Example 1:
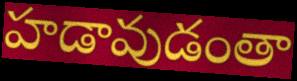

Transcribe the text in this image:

హడావుడంతా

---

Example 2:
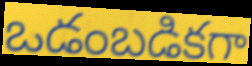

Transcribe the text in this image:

ఒడంబడికగా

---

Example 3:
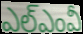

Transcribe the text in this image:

ఎల్ఎంవీ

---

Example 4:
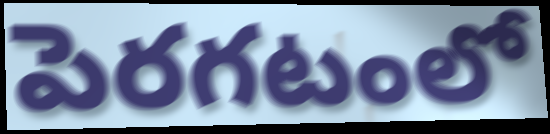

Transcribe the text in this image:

పెరగటంలో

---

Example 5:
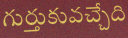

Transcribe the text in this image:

గుర్తుకువచ్చేది